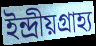
ইন্দ্রীয়গ্রাহ্য